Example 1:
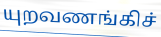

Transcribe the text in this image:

யுறவணங்கிச்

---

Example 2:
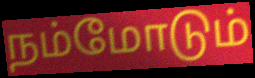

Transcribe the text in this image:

நம்மோடும்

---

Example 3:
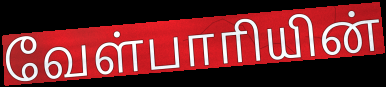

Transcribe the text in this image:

வேள்பாரியின்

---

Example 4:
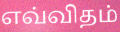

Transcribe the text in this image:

எவ்விதம்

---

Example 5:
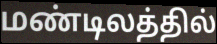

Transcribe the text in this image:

மண்டிலத்தில்